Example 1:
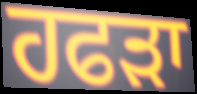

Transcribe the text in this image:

ਹਫੜਾ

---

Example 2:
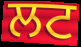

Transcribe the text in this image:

ਲਟ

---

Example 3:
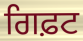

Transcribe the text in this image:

ਗਿਫ਼ਟ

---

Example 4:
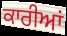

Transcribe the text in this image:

ਕਾਰੀਆਂ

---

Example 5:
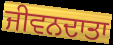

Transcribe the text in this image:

ਜੀਵਨਦਾਤਾ